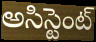
అసిస్టెంట్